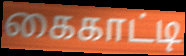
கைகாட்டி